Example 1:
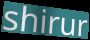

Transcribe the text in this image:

shirur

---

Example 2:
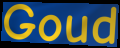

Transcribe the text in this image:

Goud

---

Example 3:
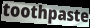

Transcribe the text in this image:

toothpaste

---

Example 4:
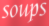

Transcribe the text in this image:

soups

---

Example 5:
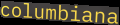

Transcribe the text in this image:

columbiana